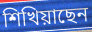
শিখিয়াছেন